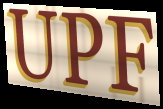
UPF